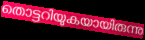
തൊട്ടറിയുകയായിരുന്നു